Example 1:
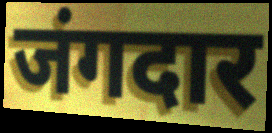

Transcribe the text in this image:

जंगदार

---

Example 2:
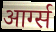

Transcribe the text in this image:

आर्ग्स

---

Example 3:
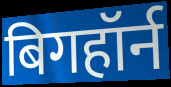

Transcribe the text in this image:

बिगहॉर्न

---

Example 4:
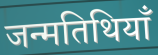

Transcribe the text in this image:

जन्मतिथियाँ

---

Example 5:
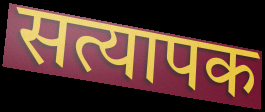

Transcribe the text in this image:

सत्यापक